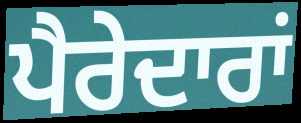
ਪੈਰੇਦਾਰਾਂ